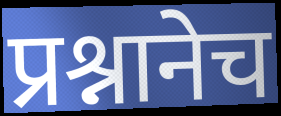
प्रश्नानेच